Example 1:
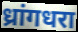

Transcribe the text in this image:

ध्रांगधरा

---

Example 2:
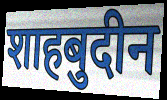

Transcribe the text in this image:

शाहबुदीन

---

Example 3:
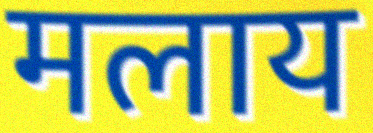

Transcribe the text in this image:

मलाय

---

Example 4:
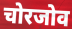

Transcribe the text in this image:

चोरजोव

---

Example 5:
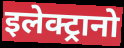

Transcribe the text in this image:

इलेक्ट्रानो